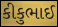
કીકુભાઈ